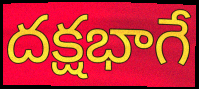
దక్షభాగే